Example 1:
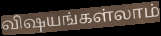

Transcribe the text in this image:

விஷயங்கள்லாம்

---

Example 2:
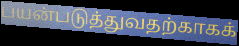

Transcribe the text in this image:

பயன்படுத்துவதற்காகக்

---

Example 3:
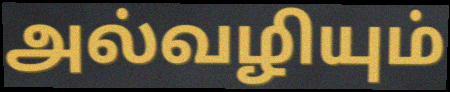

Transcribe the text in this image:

அல்வழியும்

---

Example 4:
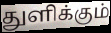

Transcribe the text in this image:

துளிக்கும்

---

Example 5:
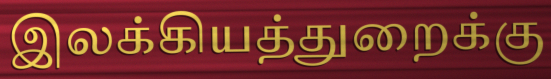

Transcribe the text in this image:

இலக்கியத்துறைக்கு